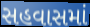
સહવાસમાં